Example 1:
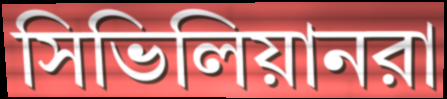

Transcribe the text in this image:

সিভিলিয়ানরা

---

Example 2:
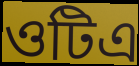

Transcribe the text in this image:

ওটিএ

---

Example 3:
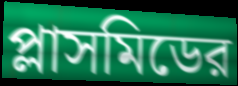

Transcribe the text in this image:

প্লাসমিডের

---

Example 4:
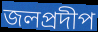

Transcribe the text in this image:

জলপ্রদীপ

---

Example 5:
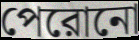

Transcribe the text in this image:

পেরোনো